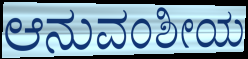
ಆನುವಂಶೀಯ